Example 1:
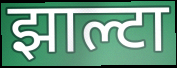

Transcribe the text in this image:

झाल्टा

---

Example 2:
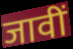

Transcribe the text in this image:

जावीं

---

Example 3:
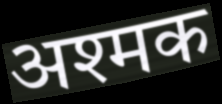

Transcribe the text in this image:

अश्मक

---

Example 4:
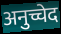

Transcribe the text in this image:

अनुच्चेद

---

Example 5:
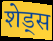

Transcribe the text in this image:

शेड्स